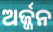
ଅର୍ଜ୍ଜନ